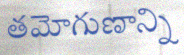
తమోగుణాన్ని